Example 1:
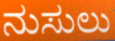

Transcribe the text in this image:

ನುಸುಲು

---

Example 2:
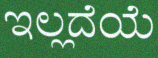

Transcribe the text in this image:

ಇಲ್ಲದೆಯೆ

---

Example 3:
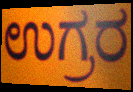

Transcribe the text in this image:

ಉಗ್ರರ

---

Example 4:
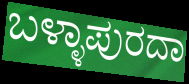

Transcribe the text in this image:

ಬಳ್ಳಾಪುರದಾ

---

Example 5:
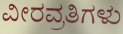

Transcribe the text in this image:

ವೀರವ್ರತಿಗಳು